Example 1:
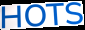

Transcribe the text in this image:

HOTS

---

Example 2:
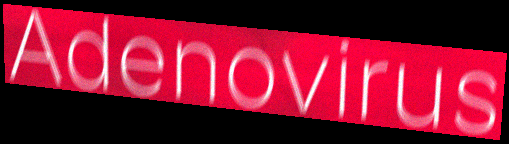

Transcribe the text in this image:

Adenovirus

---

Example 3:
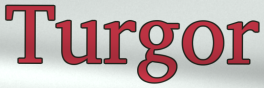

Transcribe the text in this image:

Turgor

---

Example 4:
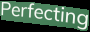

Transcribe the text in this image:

Perfecting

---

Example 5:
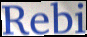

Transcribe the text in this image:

Rebi